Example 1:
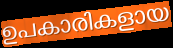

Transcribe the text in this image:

ഉപകാരികളായ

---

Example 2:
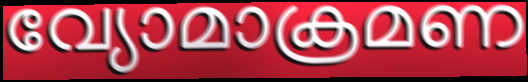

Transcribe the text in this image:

വ്യോമാക്രമണ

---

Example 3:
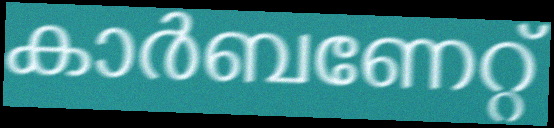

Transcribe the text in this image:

കാർബണേറ്റ്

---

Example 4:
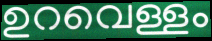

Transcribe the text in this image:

ഉറവെള്ളം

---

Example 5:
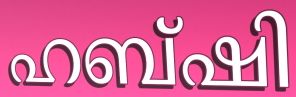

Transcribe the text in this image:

ഹബ്ഷി